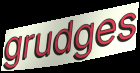
grudges